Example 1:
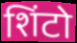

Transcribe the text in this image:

शिंटो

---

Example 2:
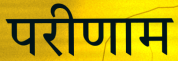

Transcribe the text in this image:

परीणाम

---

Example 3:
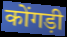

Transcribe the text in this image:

कोंगड़ी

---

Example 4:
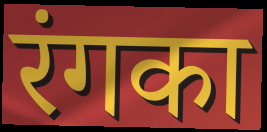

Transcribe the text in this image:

रंगका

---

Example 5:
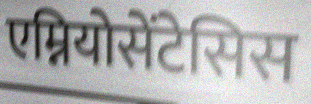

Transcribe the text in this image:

एम्नियोसेंटेसिस